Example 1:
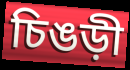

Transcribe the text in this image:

চিঙড়ী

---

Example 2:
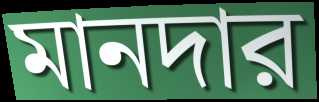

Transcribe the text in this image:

মানদার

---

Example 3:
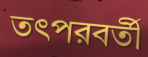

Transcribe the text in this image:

তৎপরবর্তী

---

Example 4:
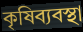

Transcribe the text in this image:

কৃষিব্যবস্থা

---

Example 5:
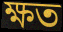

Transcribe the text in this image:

ক্ষত